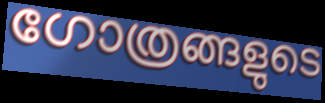
ഗോത്രങ്ങളുടെ